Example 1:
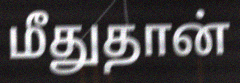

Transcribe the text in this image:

மீதுதான்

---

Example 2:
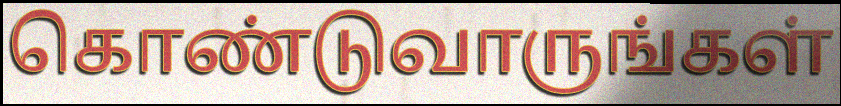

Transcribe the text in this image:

கொண்டுவாருங்கள்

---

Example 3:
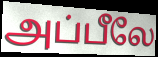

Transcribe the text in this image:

அப்பீலே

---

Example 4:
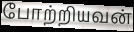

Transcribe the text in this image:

போற்றியவன்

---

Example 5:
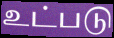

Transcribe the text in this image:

உட்படு